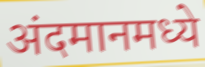
अंदमानमध्ये